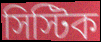
সিস্টিক